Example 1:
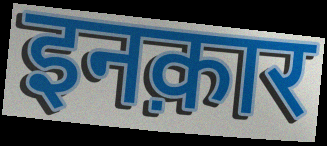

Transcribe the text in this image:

इनक़ार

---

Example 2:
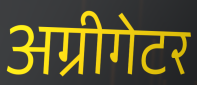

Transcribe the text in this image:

अग्रीगेटर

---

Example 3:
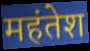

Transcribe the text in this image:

महंतेश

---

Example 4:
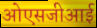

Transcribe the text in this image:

ओएसजीआई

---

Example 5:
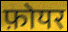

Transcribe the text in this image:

फ़ोयर